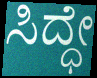
ಸಿದ್ಧೇ